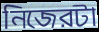
নিজেরটা